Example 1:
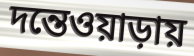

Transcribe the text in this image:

দন্তেওয়াড়ায়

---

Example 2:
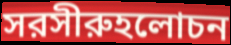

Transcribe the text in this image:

সরসীরুহলোচন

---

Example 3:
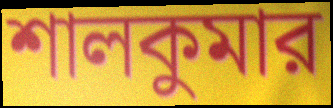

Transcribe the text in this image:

শালকুমার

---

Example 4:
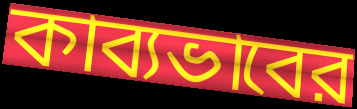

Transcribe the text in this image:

কাব্যভাবের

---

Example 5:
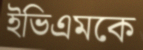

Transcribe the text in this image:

ইভিএমকে